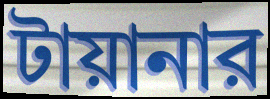
টায়ানার